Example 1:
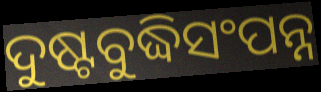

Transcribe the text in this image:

ଦୁଷ୍ଟବୁଦ୍ଧିସଂପନ୍ନ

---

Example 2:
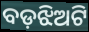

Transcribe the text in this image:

ବଡ଼ଝିଅଟି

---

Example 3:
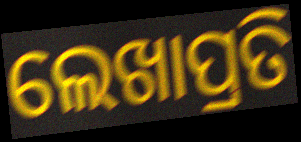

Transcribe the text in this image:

ଲେଖାପ୍ରତି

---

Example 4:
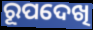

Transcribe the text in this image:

ରୂପଦେଖି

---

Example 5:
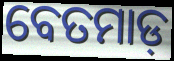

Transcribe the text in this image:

ବେତମାଡ଼